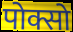
पोक्सो